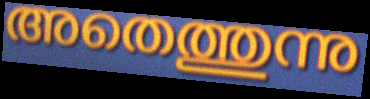
അതെത്തുന്നു